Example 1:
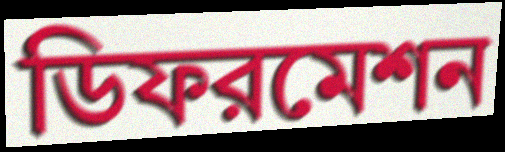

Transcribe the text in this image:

ডিফরমেশন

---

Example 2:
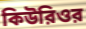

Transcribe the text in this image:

কিউরিওর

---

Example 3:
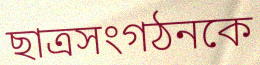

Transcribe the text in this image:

ছাত্রসংগঠনকে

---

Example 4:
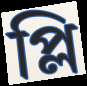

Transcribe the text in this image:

প্লি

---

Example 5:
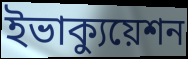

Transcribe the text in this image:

ইভাক্যুয়েশন